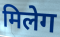
मिलेग